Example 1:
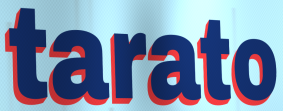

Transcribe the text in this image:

tarato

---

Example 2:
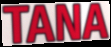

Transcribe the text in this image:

TANA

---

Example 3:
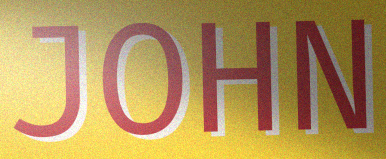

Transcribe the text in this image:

JOHN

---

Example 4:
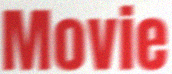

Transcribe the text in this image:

Movie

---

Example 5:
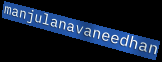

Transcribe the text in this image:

manjulanavaneedhan